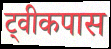
ट्वीकपास